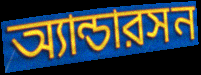
অ্যান্ডারসন